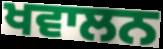
ਖਵਾਲਨ